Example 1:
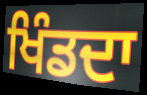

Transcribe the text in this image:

ਖਿੰਡਦਾ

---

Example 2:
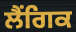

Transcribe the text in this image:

ਲੈਂਗਿਕ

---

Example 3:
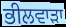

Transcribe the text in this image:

ਭੀਲਵਾੜਾ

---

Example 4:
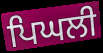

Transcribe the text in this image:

ਪਿਘਲੀ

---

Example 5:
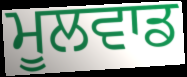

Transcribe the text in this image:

ਮੂਲਵਾਡ